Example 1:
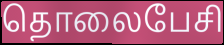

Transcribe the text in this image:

தொலைபேசி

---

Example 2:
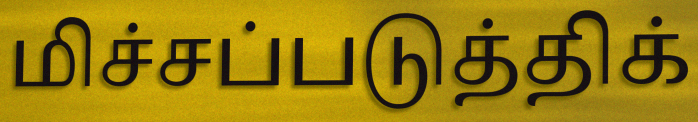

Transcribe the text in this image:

மிச்சப்படுத்திக்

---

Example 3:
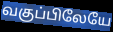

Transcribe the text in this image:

வகுப்பிலேயே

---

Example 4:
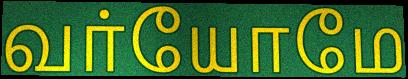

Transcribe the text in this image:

வர்யோமே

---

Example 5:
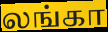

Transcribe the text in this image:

லங்கா